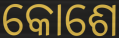
କୋଶେ